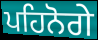
ਪਹਿਨੋਗੇ